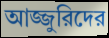
আজ্জুরিদের